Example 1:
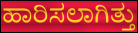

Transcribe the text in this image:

ಹಾರಿಸಲಾಗಿತ್ತು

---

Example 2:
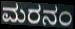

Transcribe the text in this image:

ಮರನಂ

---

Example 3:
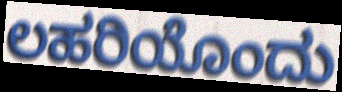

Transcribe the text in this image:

ಲಹರಿಯೊಂದು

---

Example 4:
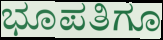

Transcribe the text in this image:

ಭೂಪತಿಗೂ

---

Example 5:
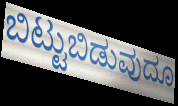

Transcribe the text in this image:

ಬಿಟ್ಟುಬಿಡುವುದೂ